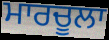
ਮਾਰਚੂਲਾ